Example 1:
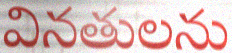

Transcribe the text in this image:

వినతులను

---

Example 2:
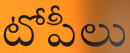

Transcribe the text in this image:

టోపీలు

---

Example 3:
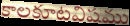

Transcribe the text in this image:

కాలకూటవిషము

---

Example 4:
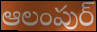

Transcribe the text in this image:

ఆలంపుర్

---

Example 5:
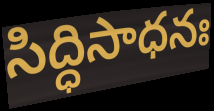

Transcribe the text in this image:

సిద్ధిసాధనః